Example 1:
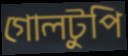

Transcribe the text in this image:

গোলটুপি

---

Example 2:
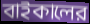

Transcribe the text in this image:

বাইকালের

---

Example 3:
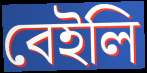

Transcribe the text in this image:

বেইলি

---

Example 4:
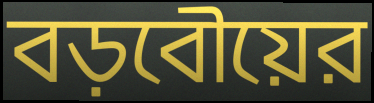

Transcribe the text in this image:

বড়বৌয়ের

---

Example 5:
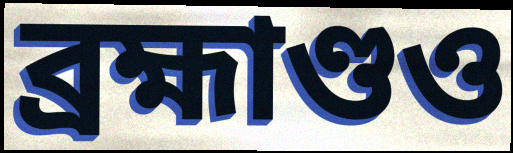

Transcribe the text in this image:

ব্রহ্মাণ্ডও